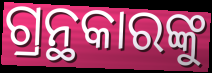
ଗ୍ରନ୍ଥକାରଙ୍କୁ